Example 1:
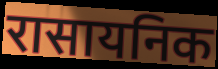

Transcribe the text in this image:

रासायनिक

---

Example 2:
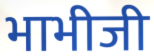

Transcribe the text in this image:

भाभीजी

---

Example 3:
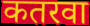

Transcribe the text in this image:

कतरवा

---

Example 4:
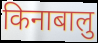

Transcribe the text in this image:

किनाबालु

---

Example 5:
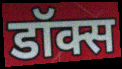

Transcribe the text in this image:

डॉक्स